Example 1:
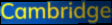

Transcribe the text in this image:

Cambridge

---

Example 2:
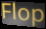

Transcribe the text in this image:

Flop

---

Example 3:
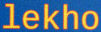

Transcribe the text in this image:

lekho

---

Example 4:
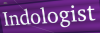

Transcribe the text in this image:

Indologist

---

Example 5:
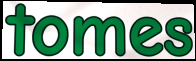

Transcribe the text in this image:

tomes